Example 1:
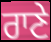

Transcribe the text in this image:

ਰਾਣੇ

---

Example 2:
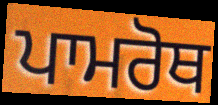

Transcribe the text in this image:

ਪਾਮਰੋਥ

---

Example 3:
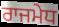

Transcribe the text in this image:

ਰਾਜਮੇਧ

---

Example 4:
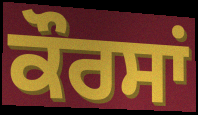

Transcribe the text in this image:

ਕੌਰਸਾਂ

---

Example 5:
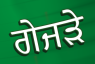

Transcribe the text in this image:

ਗੇਜੜੇ